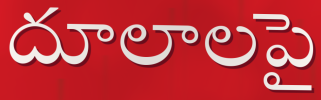
దూలాలపై